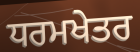
ਧਰਮਖੇਤਰ